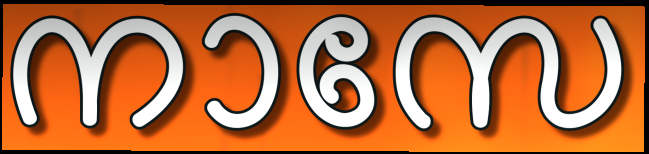
നാസേ